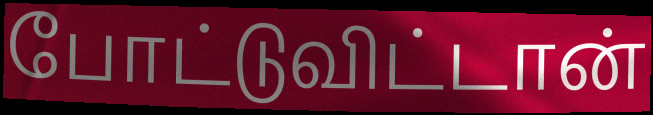
போட்டுவிட்டான்